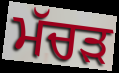
ਮੱਚੜ